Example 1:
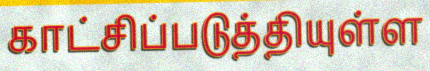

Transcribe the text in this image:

காட்சிப்படுத்தியுள்ள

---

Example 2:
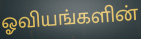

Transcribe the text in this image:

ஓவியங்களின்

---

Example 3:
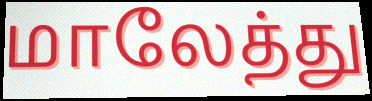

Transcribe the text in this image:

மாலேத்து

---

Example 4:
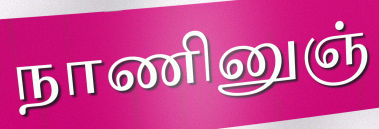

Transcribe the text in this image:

நாணினுஞ்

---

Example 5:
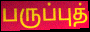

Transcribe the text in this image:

பருப்புத்